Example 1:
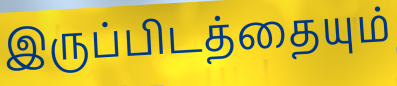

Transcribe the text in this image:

இருப்பிடத்தையும்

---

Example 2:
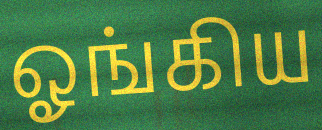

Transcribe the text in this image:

ஓங்கிய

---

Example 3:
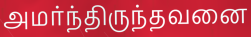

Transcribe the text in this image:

அமர்ந்திருந்தவனை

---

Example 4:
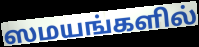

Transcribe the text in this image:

ஸமயங்களில்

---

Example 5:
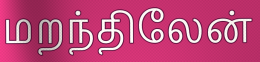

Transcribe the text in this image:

மறந்திலேன்